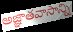
అజ్ఞాతవాసాన్ని